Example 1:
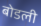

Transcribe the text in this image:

बोडली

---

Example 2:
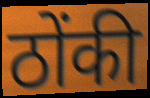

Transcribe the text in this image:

ठोंकी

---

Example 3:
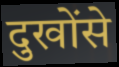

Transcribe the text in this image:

दुखोंसे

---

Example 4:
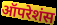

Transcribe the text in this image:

ऑपरेशंस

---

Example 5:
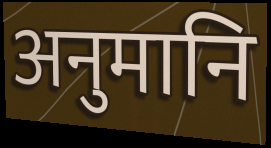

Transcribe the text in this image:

अनुमानि